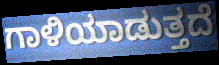
ಗಾಳಿಯಾಡುತ್ತದೆ